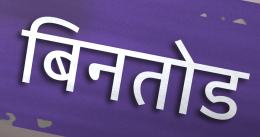
बिनतोड